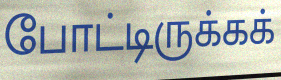
போட்டிருக்கக்